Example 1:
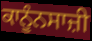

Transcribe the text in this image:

ਕਾਨੂੰਨਸਾਜ਼ੀ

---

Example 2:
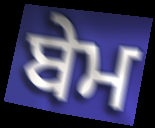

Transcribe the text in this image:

ਬੇਮ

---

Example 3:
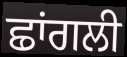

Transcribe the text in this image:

ਛਾਂਗਲੀ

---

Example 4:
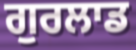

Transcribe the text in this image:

ਗੁਰਲਾਡ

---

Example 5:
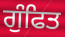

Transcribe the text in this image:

ਗੁੰਫਿਤ